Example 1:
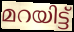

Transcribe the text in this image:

മറയിട്ട്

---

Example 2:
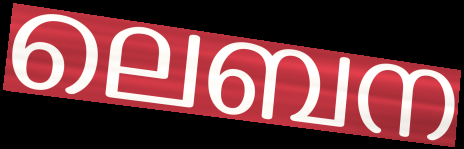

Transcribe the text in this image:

ലെബന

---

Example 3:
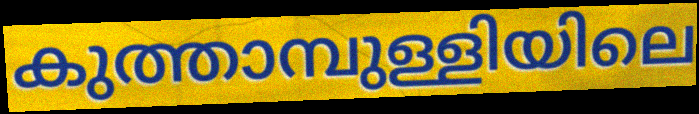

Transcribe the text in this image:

കുത്താമ്പുള്ളിയിലെ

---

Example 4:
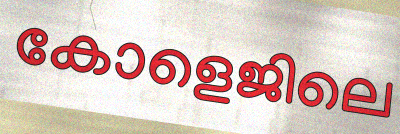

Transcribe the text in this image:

കോളെജിലെ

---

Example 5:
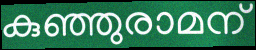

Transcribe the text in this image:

കുഞ്ഞുരാമന്